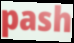
pash